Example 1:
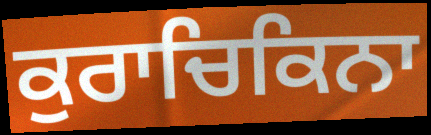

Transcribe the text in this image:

ਕੁਰਾਚਿਕਿਨਾ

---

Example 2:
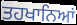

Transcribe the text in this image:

ਤਹਖਾਨਿਆਂ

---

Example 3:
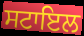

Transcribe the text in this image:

ਸਟਾਇਲ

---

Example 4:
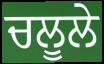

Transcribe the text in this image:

ਚਲੂਲੇ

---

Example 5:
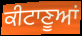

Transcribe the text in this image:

ਕੀਟਾਣੂਆਂ